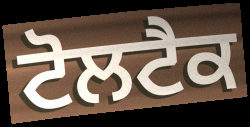
ਟੋਲਟੈਕ